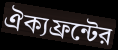
ঐক্যফ্রন্টের